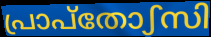
പ്രാപ്തോഽസി